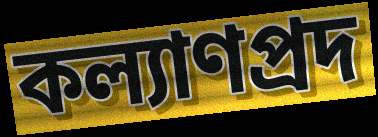
কল্যাণপ্রদ